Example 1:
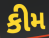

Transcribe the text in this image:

કીમ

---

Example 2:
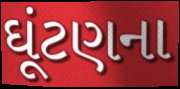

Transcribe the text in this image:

ઘૂંટણના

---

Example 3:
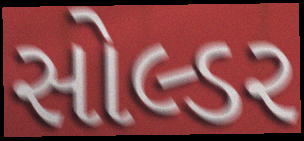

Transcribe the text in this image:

સોલ્ડર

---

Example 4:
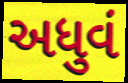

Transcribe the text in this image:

અધુવં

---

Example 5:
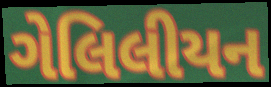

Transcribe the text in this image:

ગેલિલીયન